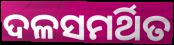
ଦଳସମର୍ଥିତ